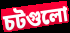
চটগুলো